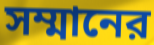
সম্মানের